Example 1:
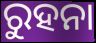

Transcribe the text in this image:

ରୁହନା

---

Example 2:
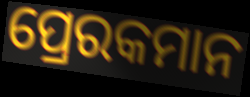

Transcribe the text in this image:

ପ୍ରେରକମାନ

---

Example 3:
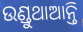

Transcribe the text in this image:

ଉଣ୍ଡୁଥାଆନ୍ତି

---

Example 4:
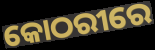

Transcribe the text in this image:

କୋଠରୀରେ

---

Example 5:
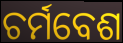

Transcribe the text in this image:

ଚର୍ମବେଶ